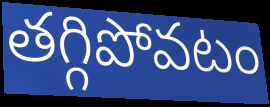
తగ్గిపోవటం